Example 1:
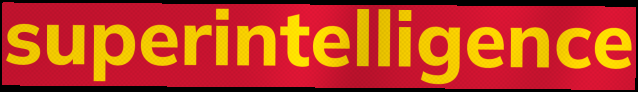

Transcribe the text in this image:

superintelligence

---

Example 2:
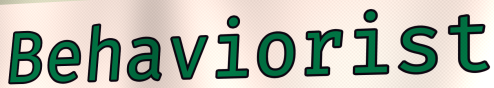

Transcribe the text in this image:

Behaviorist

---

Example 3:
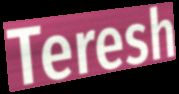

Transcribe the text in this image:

Teresh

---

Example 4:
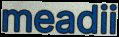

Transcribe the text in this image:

meadii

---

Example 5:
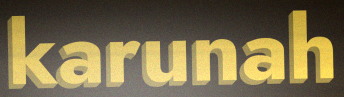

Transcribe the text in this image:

karunah